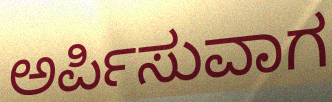
ಅರ್ಪಿಸುವಾಗ